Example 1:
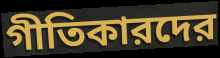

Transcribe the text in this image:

গীতিকারদের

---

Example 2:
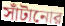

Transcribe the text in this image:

সাঁটানোর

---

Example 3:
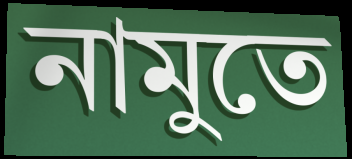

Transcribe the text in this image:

নামুতে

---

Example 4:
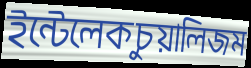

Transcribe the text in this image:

ইন্টেলেকচুয়ালিজম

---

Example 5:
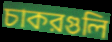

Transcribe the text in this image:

চাকরগুলি